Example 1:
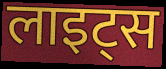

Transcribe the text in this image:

लाइट्स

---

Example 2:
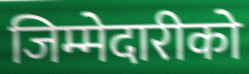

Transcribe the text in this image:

जिम्मेदारीको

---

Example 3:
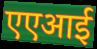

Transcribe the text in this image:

एएआई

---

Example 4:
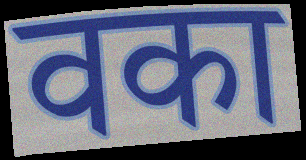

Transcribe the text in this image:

वका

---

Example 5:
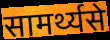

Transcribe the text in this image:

सामर्थ्यसे